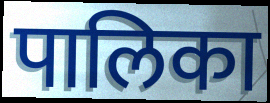
पालिका